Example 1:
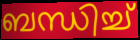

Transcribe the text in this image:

ബന്ധിച്ച്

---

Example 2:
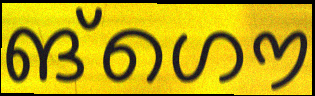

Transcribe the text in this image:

ങ്ഗൌ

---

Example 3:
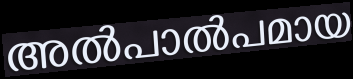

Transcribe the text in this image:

അൽപാൽപമായ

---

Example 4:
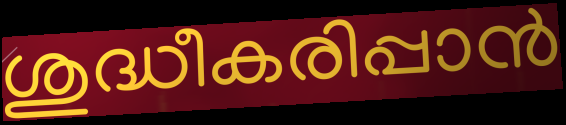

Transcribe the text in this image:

ശുദ്ധീകരിപ്പാൻ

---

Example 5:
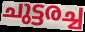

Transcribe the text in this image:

ചുട്ടരച്ച